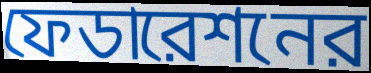
ফেডারেশনের